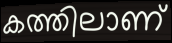
കത്തിലാണ്